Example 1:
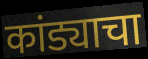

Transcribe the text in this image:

कांड्याचा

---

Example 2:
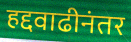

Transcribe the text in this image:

हद्दवाढीनंतर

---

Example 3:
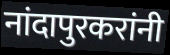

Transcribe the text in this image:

नांदापुरकरांनी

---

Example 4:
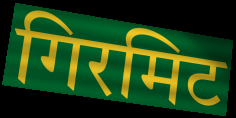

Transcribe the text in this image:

गिरमिट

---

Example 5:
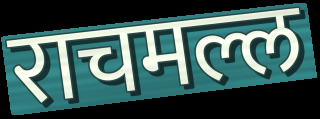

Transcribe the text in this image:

राचमल्ल